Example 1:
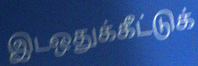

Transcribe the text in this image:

இடஒதுக்கீட்டுக்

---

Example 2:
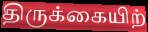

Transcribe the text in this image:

திருக்கையிற்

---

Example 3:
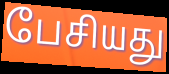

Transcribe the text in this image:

பேசியது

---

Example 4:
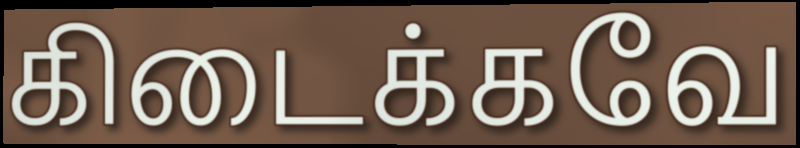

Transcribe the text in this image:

கிடைக்கவே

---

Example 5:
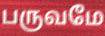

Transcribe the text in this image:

பருவமே